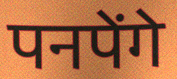
पनपेंगे